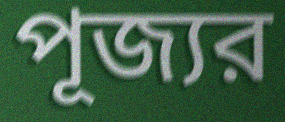
পূজ্যর